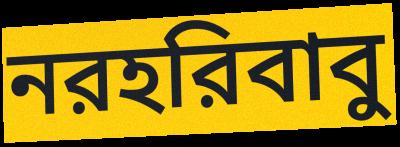
নরহরিবাবু